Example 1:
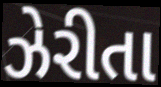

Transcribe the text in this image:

ઝેરીતા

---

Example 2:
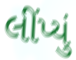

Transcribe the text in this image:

લીંપ્યું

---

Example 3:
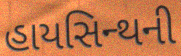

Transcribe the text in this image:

હાયસિન્થની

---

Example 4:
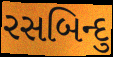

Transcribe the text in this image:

રસબિન્દુ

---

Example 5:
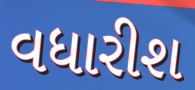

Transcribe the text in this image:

વધારીશ